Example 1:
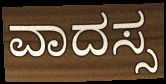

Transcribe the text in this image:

ವಾದಸ್ಸ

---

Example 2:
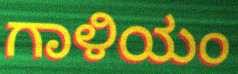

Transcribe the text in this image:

ಗಾಳಿಯಂ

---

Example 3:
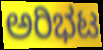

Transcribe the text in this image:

ಅರಿಭಟ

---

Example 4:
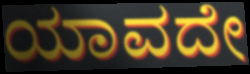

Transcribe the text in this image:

ಯಾವದೇ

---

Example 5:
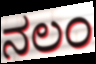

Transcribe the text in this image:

ನಲಂ